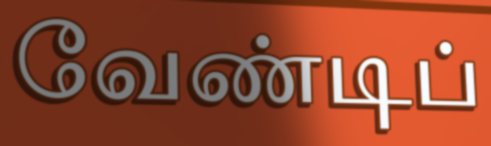
வேண்டிப்